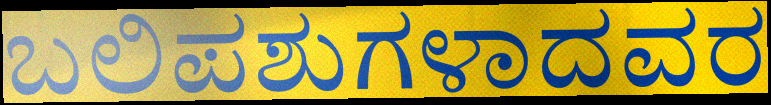
ಬಲಿಪಶುಗಳಾದವರ